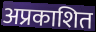
अप्रकाशित